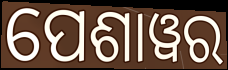
ପେଶାୱର